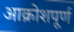
आक्रोशपूर्ण